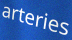
arteries